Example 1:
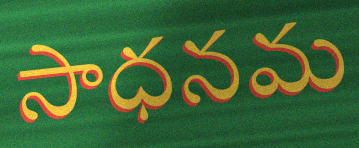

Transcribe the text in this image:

సాధనమ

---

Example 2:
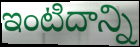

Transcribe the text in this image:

ఇంటిదాన్ని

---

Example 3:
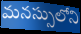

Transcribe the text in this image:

మనస్సులోని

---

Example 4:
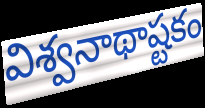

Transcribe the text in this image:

విశ్వనాథాష్టకం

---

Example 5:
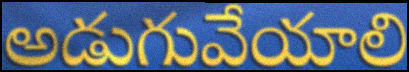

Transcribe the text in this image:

అడుగువేయాలి